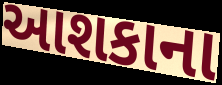
આશકાના